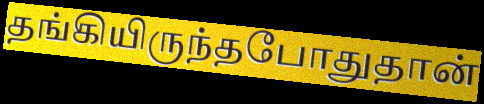
தங்கியிருந்தபோதுதான்